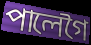
পালেগৈ